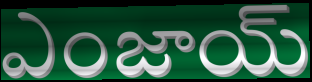
ఎంజాయ్